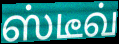
ஸ்டீவ்